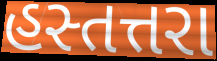
હસ્તત્તરા